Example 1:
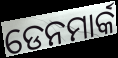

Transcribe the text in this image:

ଡେନମାର୍କ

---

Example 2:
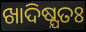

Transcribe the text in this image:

ଖାଦିଷ୍ଯତଃ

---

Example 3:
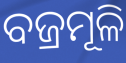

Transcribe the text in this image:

ବଜ୍ରମୂଳି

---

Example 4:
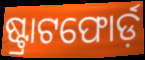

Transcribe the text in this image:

ଷ୍ଟ୍ରାଟଫୋର୍ଡ଼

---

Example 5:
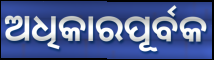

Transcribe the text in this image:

ଅଧିକାରପୂର୍ବକ